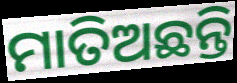
ମାତିଅଛନ୍ତି